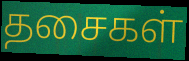
தசைகள்